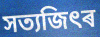
সত্যজিৎৰ